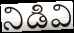
నిడివి